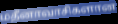
மதீனாவாசிகளான